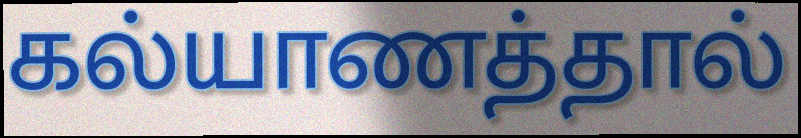
கல்யாணத்தால்